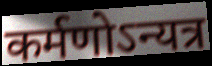
कर्मणोऽन्यत्र